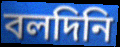
বলদিনি